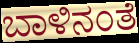
ಬಾಳಿನಂತೆ